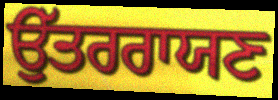
ਉੱਤਰਰਾਯਣ